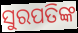
ସୁରପତିଙ୍କ